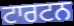
ਟਾਰਟਨ